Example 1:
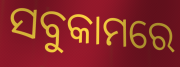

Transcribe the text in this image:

ସବୁକାମରେ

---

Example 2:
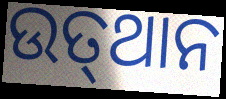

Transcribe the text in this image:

ଉତ୍‍ଥାନ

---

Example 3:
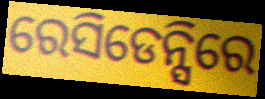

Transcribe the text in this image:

ରେସିଡେନ୍ସିରେ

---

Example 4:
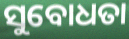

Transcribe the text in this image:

ସୁବୋଧତା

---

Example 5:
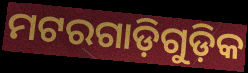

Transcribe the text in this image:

ମଟରଗାଡ଼ିଗୁଡ଼ିକ